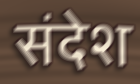
संदेश